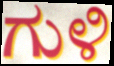
ಗುಳಿ